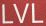
LVL